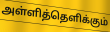
அள்ளித்தெளிக்கும்